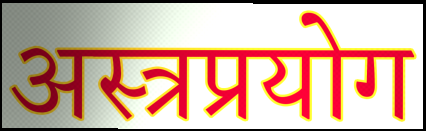
अस्त्रप्रयोग